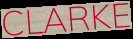
CLARKE